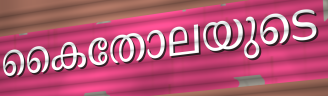
കൈതോലയുടെ